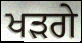
ਖੜਗੇ